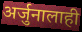
अर्जुनालाही